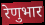
रेणुभार